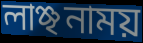
লাঞ্ছনাময়